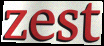
zest